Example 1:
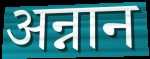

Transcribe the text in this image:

अन्नान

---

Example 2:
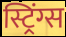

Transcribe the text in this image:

स्ट्रिंग्स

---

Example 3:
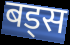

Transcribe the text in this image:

बड्स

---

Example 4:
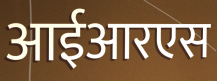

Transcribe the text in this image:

आईआरएस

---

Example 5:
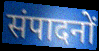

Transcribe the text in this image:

संपादनों